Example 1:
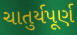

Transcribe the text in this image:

ચાતુર્યપૂર્ણ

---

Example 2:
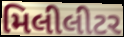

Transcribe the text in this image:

મિલીલીટર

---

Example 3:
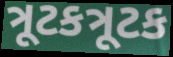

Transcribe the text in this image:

ત્રૂટકત્રૂટક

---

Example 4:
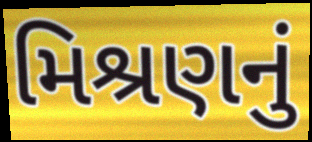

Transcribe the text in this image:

મિશ્રણનું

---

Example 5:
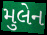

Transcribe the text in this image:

મુલેન